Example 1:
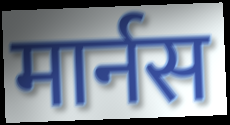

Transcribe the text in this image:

मार्नस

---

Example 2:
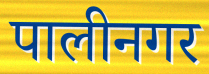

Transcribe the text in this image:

पालीनगर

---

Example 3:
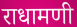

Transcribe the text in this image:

राधामणी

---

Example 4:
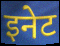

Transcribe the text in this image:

इनेट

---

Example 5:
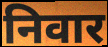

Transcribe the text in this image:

निवार